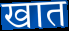
खात